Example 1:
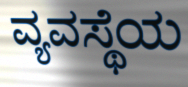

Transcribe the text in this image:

ವ್ಯವಸ್ಥೆಯ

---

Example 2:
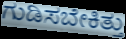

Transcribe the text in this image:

ಗುಡಿಸಬೇಕಿತ್ತು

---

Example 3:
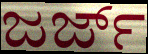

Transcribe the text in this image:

ಜರ್ಜ್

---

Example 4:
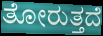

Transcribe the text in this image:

ತೋರುತ್ತದೆ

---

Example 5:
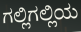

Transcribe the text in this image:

ಗಲ್ಲಿಗಲ್ಲಿಯ